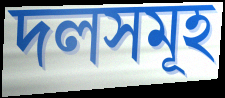
দলসমূহ